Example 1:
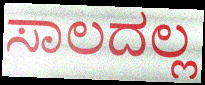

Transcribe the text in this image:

ಸಾಲದಲ್ಲ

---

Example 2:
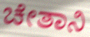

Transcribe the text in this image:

ಚೇತಾನಿ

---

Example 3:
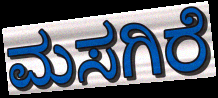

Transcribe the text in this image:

ಮಸಗಿರೆ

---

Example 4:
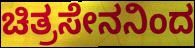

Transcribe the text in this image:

ಚಿತ್ರಸೇನನಿಂದ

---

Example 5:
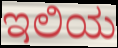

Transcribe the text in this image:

ಇಲಿಯ